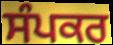
ਸੰਪਕਰ